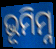
ଭୂମିମ୍ନ